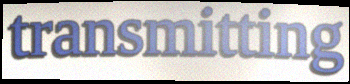
transmitting